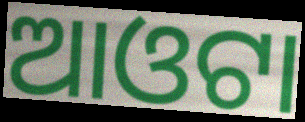
ଆଓଟା